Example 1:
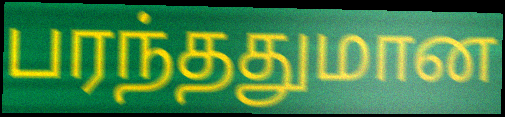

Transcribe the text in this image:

பரந்ததுமான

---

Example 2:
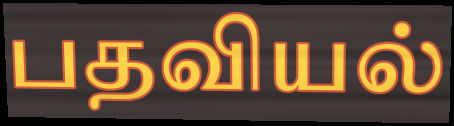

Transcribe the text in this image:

பதவியல்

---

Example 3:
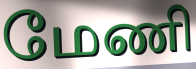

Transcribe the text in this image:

மேணி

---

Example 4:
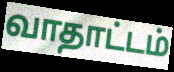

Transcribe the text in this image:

வாதாட்டம்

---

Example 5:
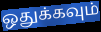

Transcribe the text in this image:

ஒதுக்கவும்